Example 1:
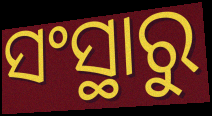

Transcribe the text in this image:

ସଂସ୍ଥାରୁ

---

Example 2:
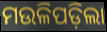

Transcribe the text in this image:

ମଉଳିପଡ଼ିଲା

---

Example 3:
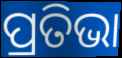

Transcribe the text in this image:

ପ୍ରତିଭା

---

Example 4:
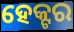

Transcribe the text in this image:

ହେକ୍ଟର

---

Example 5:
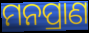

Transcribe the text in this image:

ମନପ୍ରାଣ